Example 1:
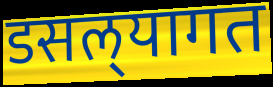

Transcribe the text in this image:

डसल्यागत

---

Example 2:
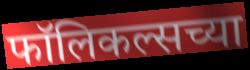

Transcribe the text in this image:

फॉलिकल्सच्या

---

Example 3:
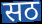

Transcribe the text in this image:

सठ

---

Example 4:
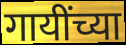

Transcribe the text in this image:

गायींच्या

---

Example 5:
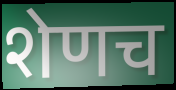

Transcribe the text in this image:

शेणच